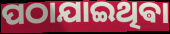
ପଠାଯାଇଥିଵା